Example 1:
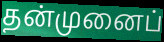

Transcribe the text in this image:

தன்முனைப்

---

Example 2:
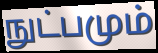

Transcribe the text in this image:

நுட்பமும்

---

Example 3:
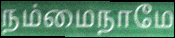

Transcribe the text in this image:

நம்மைநாமே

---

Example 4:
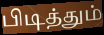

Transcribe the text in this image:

பிடித்தும்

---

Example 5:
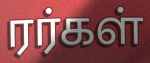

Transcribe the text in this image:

ரர்கள்